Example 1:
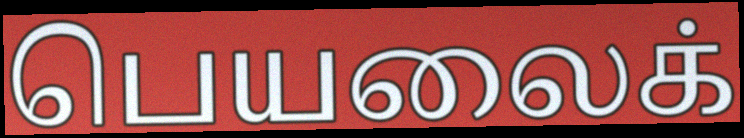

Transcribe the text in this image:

பெயலைக்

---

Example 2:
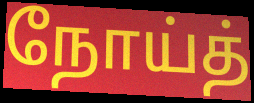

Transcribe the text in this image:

நோய்த்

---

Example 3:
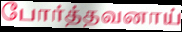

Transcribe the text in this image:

போர்த்தவனாய்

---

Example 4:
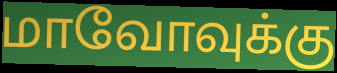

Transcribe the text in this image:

மாவோவுக்கு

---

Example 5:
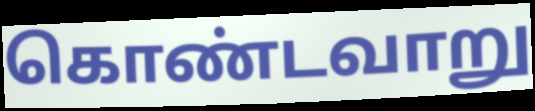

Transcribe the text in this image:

கொண்டவாறு